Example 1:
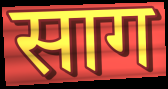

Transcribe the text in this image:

साग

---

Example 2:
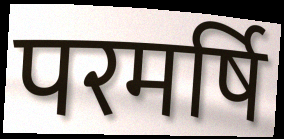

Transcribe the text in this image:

परमर्षि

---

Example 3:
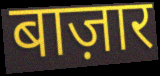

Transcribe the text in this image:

बाज़ार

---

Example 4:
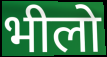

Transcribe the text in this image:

भीलो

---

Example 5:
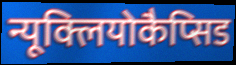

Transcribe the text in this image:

न्यूक्लियोकैप्सिड